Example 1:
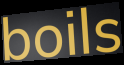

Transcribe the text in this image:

boils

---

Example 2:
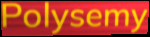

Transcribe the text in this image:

Polysemy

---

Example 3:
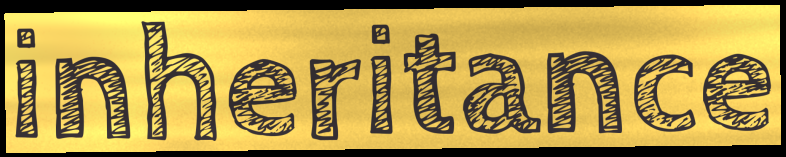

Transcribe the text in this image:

inheritance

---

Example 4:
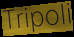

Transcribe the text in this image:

Tripoli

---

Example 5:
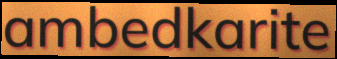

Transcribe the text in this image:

ambedkarite